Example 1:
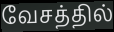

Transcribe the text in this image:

வேசத்தில்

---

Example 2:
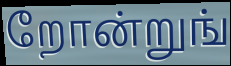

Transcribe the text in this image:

றோன்றுங்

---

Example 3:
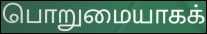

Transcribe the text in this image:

பொறுமையாகக்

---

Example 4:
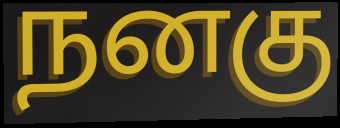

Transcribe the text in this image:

நனகு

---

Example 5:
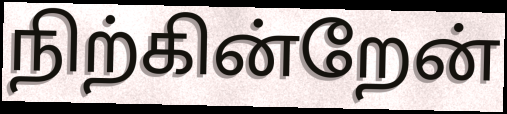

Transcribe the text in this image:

நிற்கின்றேன்